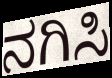
ನಗಿಸಿ